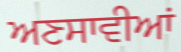
ਅਣਸਾਵੀਆਂ